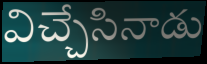
విచ్చేసినాడు